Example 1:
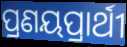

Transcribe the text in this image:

ପ୍ରଣୟପ୍ରାର୍ଥୀ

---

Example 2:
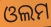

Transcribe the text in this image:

ଓଲମ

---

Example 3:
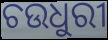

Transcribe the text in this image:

ଚଉଧୁରୀ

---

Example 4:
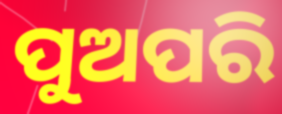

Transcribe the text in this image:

ପୁଅପରି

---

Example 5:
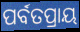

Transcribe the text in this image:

ପର୍ବତପ୍ରାୟ